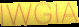
IWGIA